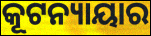
କୂଟନ୍ୟାୟାର